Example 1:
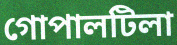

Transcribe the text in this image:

গোপালটিলা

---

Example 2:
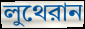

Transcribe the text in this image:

লুথেরান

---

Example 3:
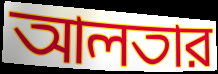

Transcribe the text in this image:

আলতার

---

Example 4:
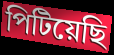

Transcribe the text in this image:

পিটিয়েছি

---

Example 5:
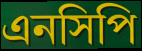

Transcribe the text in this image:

এনসিপি